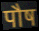
पौष